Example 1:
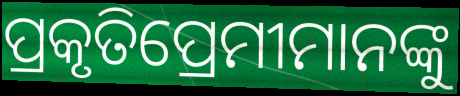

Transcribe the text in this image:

ପ୍ରକୃତିପ୍ରେମୀମାନଙ୍କୁ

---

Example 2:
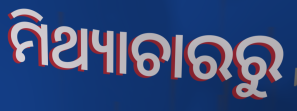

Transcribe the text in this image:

ମିଥ୍ୟାଚାରରୁ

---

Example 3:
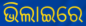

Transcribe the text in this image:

ଭିଲାଇରେ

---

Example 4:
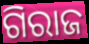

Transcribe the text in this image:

ଗିରାଜ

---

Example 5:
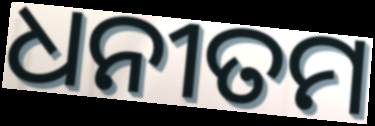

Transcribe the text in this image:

ଧନୀତମ